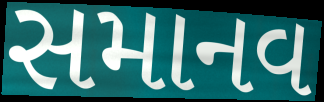
સમાનવ